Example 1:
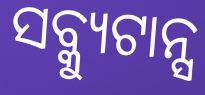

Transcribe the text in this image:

ସବ୍କ୍ୟୁଟାନ୍ସ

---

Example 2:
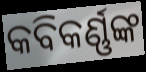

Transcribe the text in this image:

କବିକର୍ଣ୍ଣଙ୍କ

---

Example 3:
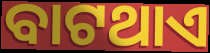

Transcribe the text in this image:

ବାଟଥାଏ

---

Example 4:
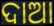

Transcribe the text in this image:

ଦାଆ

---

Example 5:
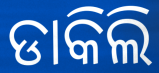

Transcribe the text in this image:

ଡାକିଲି